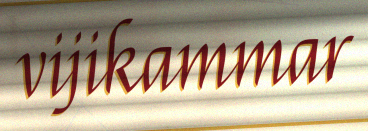
vijikammar